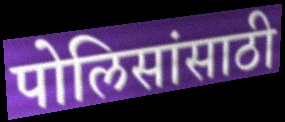
पोलिसांसाठी